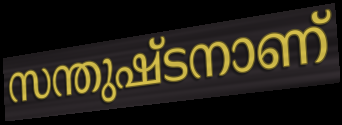
സന്തുഷ്ടനാണ്